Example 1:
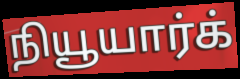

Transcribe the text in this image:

நியூயார்க்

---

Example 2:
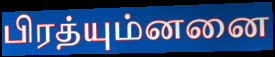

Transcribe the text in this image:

பிரத்யும்னனை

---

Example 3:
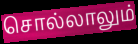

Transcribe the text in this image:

சொல்லாலும்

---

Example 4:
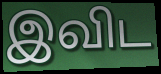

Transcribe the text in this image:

இவிட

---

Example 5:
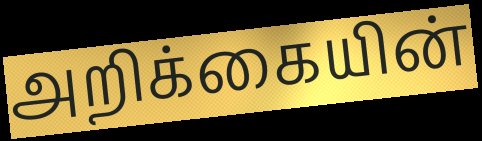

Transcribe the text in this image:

அறிக்கையின்